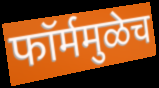
फॉर्ममुळेच